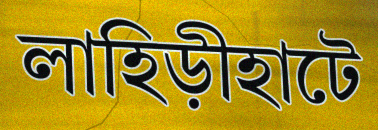
লাহিড়ীহাটে